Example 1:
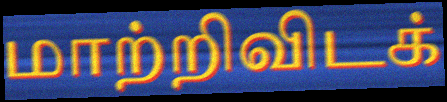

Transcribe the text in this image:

மாற்றிவிடக்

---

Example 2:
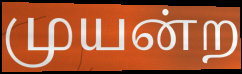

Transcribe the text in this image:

முயன்ற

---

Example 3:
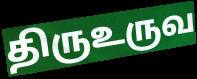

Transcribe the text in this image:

திருஉருவ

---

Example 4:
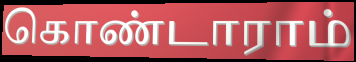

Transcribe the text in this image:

கொண்டாராம்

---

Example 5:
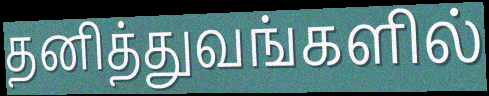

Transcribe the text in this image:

தனித்துவங்களில்